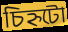
চিহ্নটো